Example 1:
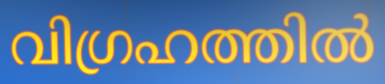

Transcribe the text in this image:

വിഗ്രഹത്തിൽ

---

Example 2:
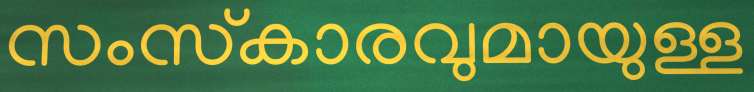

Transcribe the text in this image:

സംസ്‌കാരവുമായുള്ള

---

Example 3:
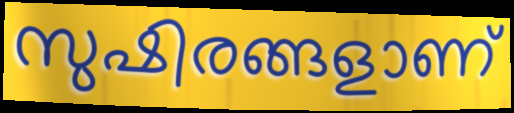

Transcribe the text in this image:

സുഷിരങ്ങളാണ്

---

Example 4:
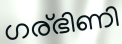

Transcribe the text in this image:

ഗര്ഭിണി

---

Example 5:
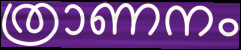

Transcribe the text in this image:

ത്രാണനം